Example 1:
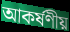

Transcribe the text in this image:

আকৰ্ষণীয়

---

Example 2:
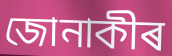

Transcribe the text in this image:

জোনাকীৰ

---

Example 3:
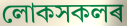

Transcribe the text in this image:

লোকসকলৰ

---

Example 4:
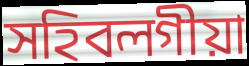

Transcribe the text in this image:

সহিবলগীয়া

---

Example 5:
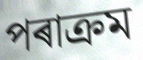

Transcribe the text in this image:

পৰাক্ৰম